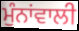
ਮੁੰਨਾਂਵਾਲੀ